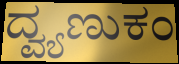
ದ್ವ್ಯಣುಕಂ